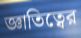
জ্ঞাতিত্বের